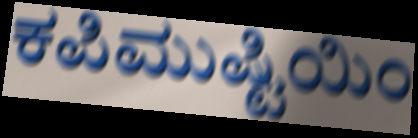
ಕಪಿಮುಷ್ಟಿಯಿಂ